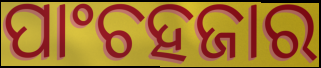
ପାଂଚହଜାର